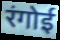
रंगोई